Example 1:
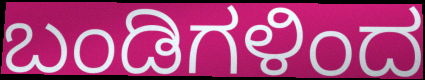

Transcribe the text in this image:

ಬಂಡಿಗಳಿಂದ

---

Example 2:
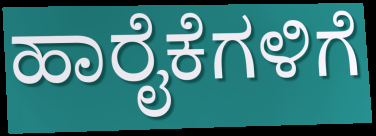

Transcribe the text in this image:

ಹಾರೈಕೆಗಳಿಗೆ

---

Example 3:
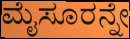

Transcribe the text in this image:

ಮೈಸೂರನ್ನೇ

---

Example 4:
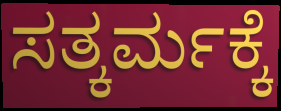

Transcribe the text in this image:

ಸತ್ಕರ್ಮಕ್ಕೆ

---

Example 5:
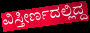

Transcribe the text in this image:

ವಿಸ್ತೀರ್ಣದಲ್ಲಿದ್ದ